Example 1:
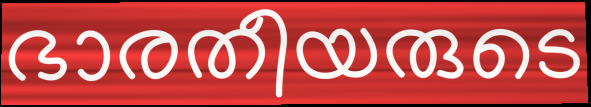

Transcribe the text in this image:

ഭാരതീയരുടെ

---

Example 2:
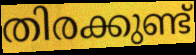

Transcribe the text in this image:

തിരക്കുണ്ട്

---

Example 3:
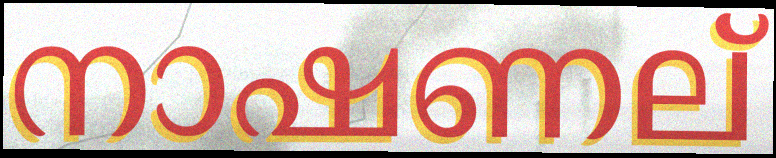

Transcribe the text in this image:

നാഷണല്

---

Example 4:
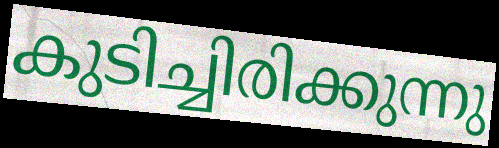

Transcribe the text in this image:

കുടിച്ചിരിക്കുന്നു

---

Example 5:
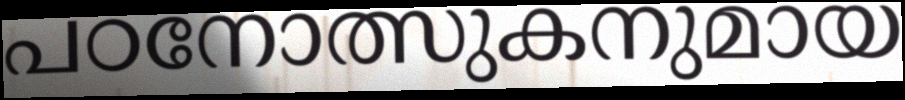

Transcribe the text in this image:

പഠനോത്സുകനുമായ